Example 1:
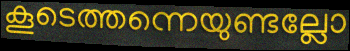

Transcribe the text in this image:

കൂടെത്തന്നെയുണ്ടല്ലോ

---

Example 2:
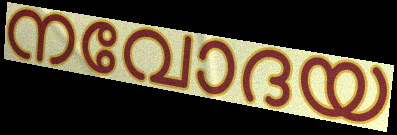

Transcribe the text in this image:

നവോദയ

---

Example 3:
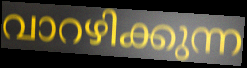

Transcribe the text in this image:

വാറഴിക്കുന്ന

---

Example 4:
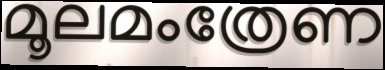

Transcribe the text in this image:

മൂലമംത്രേണ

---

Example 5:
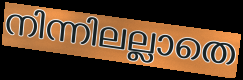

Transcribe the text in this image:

നിന്നിലല്ലാതെ